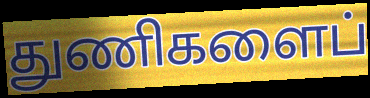
துணிகளைப்